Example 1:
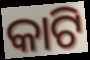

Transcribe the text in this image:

କାଟି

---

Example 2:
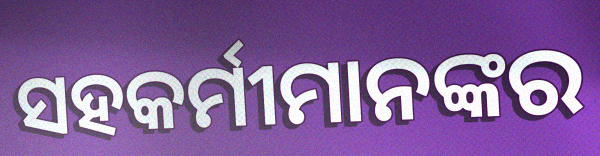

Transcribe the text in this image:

ସହକର୍ମୀମାନଙ୍କର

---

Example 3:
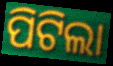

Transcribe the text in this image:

ପିଟିଲା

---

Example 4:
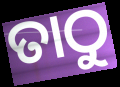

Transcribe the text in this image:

ତାଠୁ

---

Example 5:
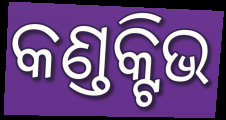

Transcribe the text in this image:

କଣ୍ଡକ୍ଟିଭ